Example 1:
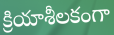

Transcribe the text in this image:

క్రియాశీలకంగా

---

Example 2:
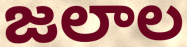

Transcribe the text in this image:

జలాల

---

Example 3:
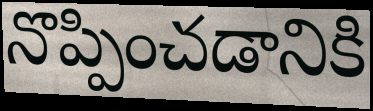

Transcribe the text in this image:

నొప్పించడానికి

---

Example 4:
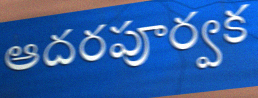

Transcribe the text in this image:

ఆదరపూర్వక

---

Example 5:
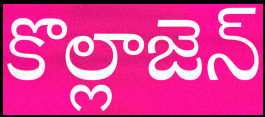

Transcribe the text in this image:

కొల్లాజెన్